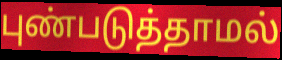
புண்படுத்தாமல்